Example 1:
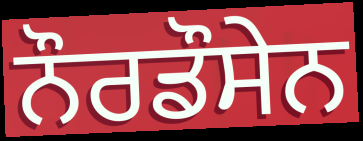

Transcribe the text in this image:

ਨੌਰਡੌਸੇਨ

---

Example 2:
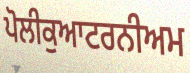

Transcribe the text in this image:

ਪੋਲੀਕੁਆਟਰਨੀਅਮ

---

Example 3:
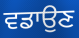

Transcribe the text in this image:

ਵਡਾਉਣ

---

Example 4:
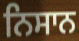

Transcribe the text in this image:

ਨਿਸਾਨ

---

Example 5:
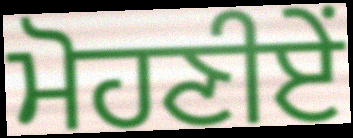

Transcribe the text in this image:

ਮੋਹਣੀਏਂ